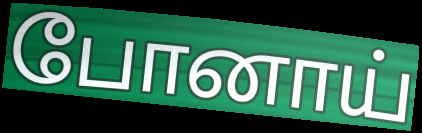
போனாய்